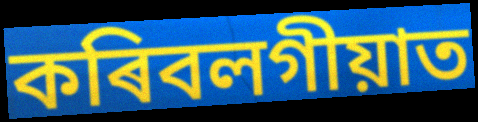
কৰিবলগীয়াত